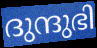
ദുന്ദുഭി